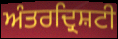
ਅੰਤਰਦ੍ਰਿਸ਼ਟੀ